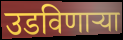
उडविणार्‍या